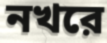
নখরে